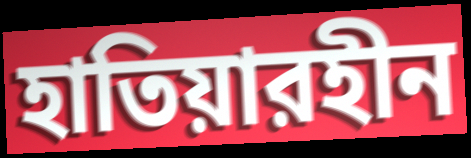
হাতিয়ারহীন